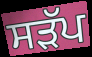
ਸੜੱਪ